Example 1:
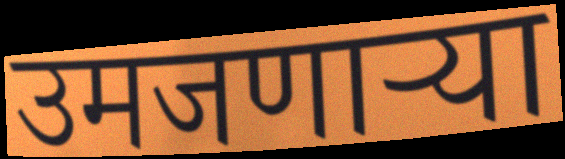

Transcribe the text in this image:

उमजणाऱ्या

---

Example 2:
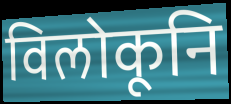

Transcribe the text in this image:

विलोकूनि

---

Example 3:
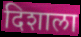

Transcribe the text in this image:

दिशाला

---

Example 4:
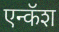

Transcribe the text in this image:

एन्कॅश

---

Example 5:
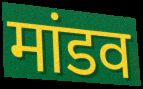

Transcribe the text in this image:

मांडव